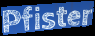
Pfister